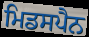
ਮਿਡਸਪੈਨ